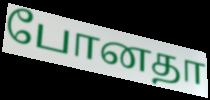
போனதா